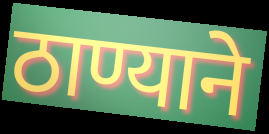
ठाण्याने